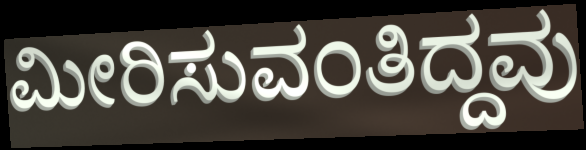
ಮೀರಿಸುವಂತಿದ್ದವು